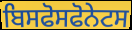
ਬਿਸਫੋਸਫੋਨੇਟਸ